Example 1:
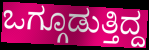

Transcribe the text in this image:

ಒಗ್ಗೂಡುತ್ತಿದ್ದ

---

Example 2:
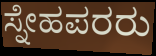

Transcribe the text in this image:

ಸ್ನೇಹಪರರು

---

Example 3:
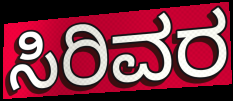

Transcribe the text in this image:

ಸಿರಿವರ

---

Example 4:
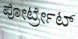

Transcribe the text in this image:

ಪೋರ್ಟ್ರೇಟ್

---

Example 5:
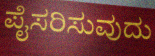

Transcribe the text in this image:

ಪೈಸರಿಸುವುದು